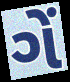
ગેં